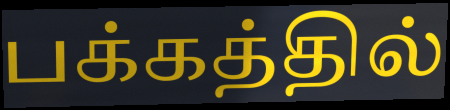
பக்கத்தில்